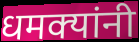
धमक्यांनी